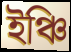
ইঞ্চি